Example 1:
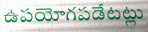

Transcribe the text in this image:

ఉపయోగపడేటట్లు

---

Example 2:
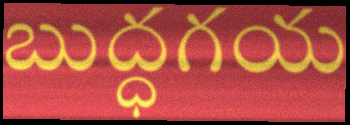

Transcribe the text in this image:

బుద్ధగయ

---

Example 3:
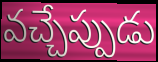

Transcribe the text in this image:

వచ్చేప్పుడు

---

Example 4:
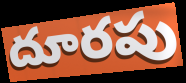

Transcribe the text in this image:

దూరపు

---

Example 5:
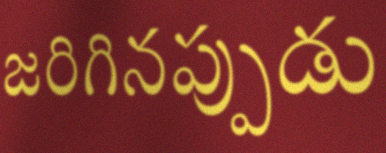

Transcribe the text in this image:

జరిగినప్పుడు